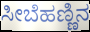
ಸೀಬೆಹಣ್ಣಿನ